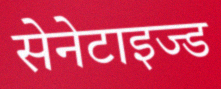
सेनेटाइज्ड